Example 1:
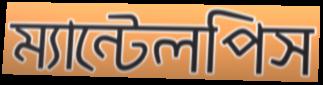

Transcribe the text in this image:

ম্যান্টেলপিস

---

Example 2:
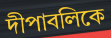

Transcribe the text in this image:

দীপাবলিকে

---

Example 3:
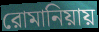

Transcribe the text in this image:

রোমানিয়ায়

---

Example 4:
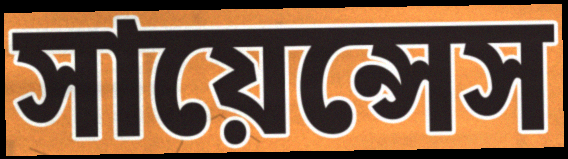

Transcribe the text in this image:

সায়েন্সেস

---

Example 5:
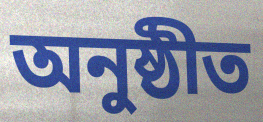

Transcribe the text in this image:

অনুষ্ঠীত